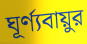
ঘূর্ণ্যবায়ুর